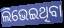
ଲିଭେଇଥିବା